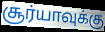
சூர்யாவுக்கு